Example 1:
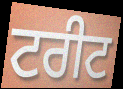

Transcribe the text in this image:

ਟਰੀਟ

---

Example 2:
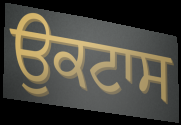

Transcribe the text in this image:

ਉਕਟਾਸ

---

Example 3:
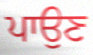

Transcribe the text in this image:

ਪਾਉਣ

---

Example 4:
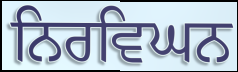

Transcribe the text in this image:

ਨਿਰਵਿਘਨ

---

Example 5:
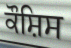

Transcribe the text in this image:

ਕੌਸ਼ਿਸ